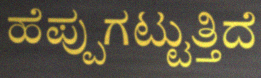
ಹೆಪ್ಪುಗಟ್ಟುತ್ತಿದೆ